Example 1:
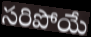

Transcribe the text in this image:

సరిపోయే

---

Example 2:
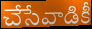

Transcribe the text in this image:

చేసేవాడికీ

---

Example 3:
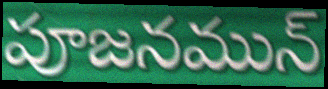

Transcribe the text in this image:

పూజనమున్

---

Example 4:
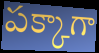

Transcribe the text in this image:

పక్కాగా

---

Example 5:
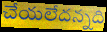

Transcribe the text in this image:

చేయలేదన్నది